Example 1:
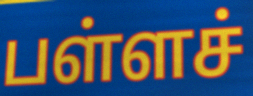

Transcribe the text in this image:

பள்ளச்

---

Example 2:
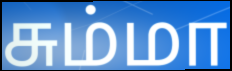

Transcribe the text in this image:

சும்மா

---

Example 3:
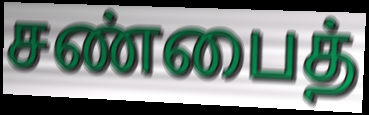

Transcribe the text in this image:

சண்பைத்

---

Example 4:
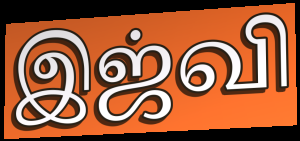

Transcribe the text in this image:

இஜ்வி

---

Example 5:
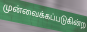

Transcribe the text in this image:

முன்வைக்கப்படுகின்ற